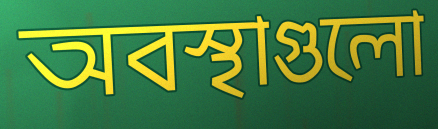
অবস্থাগুলো